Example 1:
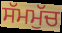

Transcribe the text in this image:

ਸੱਮਮੁੱਚ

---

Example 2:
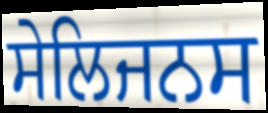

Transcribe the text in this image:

ਸੇਲਿਜਨਸ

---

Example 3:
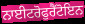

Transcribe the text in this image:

ਨਾਈਟਰੋਫੁਰੈਂਟੋਇਨ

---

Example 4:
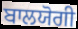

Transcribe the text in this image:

ਬਾਲਯੋਗੀ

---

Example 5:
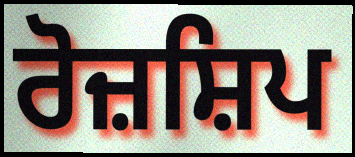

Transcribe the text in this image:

ਰੋਜ਼ਸ਼ਿਪ